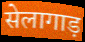
सेलागाड़